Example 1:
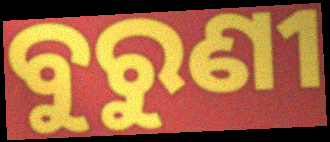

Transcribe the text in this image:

ବୁରୁଣୀ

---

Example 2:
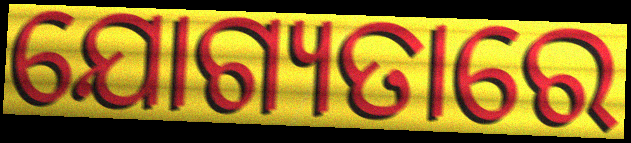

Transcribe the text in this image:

ଯୋଗ୍ୟତାରେ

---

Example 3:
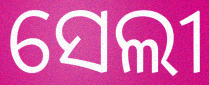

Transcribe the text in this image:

ସେଲୀ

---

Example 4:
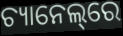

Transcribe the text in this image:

ଚ୍ୟାନେଲ୍‌ରେ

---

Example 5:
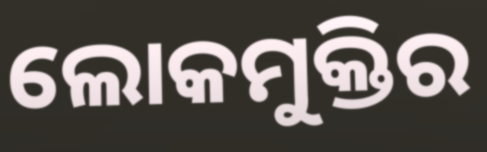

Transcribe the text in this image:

ଲୋକମୁକ୍ତିର